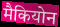
मैकियोन